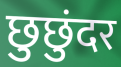
छुछुंदर